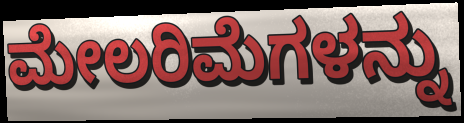
ಮೇಲರಿಮೆಗಳನ್ನು